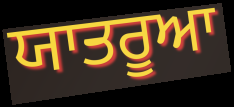
ਯਾਤਰੂਆ